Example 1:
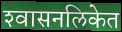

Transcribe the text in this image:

श्वासनलिकेत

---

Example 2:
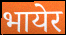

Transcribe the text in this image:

भायेर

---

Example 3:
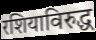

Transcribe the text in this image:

रशियाविरुद्ध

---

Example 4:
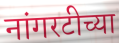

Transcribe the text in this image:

नांगरटीच्या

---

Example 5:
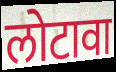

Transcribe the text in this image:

लोटावा